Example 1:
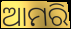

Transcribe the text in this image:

ଆମରି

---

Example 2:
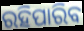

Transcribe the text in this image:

ରହିପାରିବ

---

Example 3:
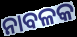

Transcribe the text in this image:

ନାବଳକ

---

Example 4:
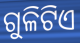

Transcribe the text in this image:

ଗୁଳିଟିଏ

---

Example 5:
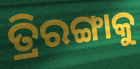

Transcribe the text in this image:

ତ୍ରିରଙ୍ଗାକୁ